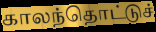
காலந்தொட்டுச்